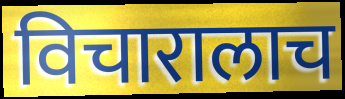
विचारालाच